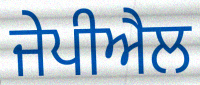
ਜੇਪੀਐਲ